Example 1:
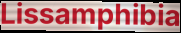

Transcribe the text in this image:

Lissamphibia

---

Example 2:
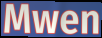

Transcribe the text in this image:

Mwen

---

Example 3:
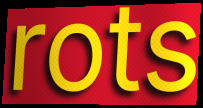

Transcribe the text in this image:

rots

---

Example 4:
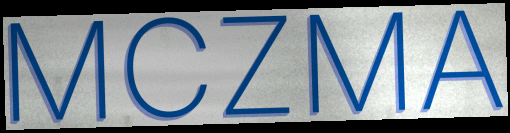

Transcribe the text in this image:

MCZMA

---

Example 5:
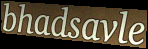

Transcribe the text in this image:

bhadsavle